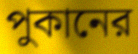
পুকানের